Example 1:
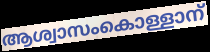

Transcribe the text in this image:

ആശ്വാസംകൊള്ളാന്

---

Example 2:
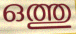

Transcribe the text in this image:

ഒത്തു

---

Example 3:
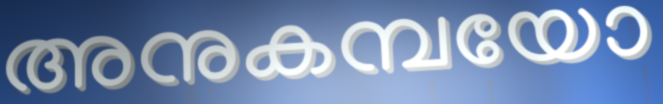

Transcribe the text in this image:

അനുകമ്പയോ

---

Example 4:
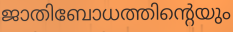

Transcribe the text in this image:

ജാതിബോധത്തിന്റെയും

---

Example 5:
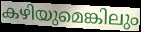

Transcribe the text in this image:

കഴിയുമെങ്കിലും